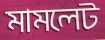
মামলেট